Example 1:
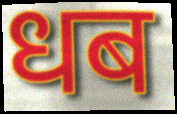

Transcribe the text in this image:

धब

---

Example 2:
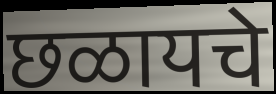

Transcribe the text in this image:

छळायचे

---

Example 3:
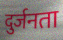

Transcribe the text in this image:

दुर्जनता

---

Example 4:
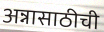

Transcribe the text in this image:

अन्नासाठीची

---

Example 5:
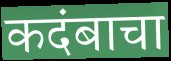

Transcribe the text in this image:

कदंबाचा